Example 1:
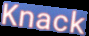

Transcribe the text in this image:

Knack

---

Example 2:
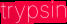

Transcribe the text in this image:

trypsin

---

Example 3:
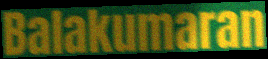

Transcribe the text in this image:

Balakumaran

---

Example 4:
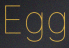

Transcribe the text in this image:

Egg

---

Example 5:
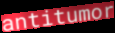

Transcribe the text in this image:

antitumor